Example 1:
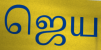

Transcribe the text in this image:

ஜெய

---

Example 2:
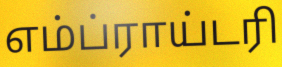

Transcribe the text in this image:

எம்ப்ராய்டரி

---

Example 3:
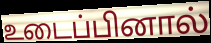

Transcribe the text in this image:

உடைப்பினால்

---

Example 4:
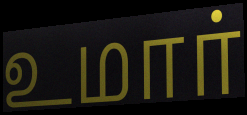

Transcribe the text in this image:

உமார்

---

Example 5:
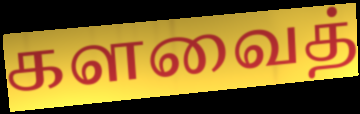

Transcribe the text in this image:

களவைத்